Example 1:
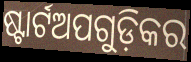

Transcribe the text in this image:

ଷ୍ଟାର୍ଟଅପଗୁଡ଼ିକର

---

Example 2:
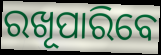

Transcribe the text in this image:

ରଖୂପାରିବେ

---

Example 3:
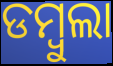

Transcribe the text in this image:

ଡମ୍ୱୁଲା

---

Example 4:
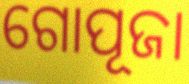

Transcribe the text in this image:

ଗୋପୂଜା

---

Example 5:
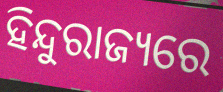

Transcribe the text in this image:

ହିନ୍ଦୁରାଜ୍ୟରେ